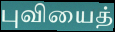
புவியைத்